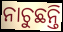
ନାଚୁଛନ୍ତି